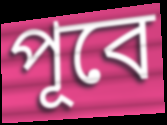
পূবে